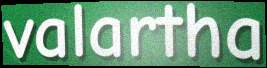
valartha